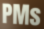
PMs